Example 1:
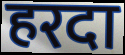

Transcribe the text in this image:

हरदा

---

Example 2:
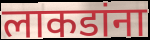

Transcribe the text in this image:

लाकडांना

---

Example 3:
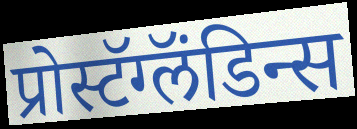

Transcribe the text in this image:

प्रोस्टॅग्लॅंडिन्स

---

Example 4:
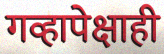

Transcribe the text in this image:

गव्हापेक्षाही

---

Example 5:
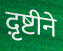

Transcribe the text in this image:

द़ृष्टीने